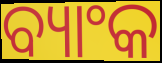
ବ୍ୟାଂକ